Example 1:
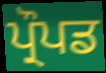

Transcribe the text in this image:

ਪ੍ਰੌਪਡ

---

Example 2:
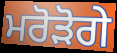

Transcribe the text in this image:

ਮਰੋੜੋਗੇ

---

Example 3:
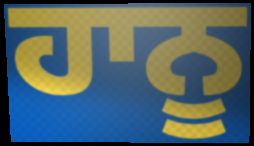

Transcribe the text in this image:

ਹਾਨੂ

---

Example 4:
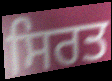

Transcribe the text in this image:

ਸਿਰਤ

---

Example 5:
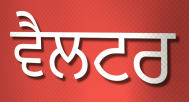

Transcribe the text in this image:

ਵੈਲਟਰ